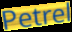
Petrel